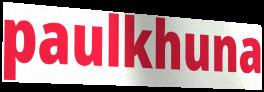
paulkhuna